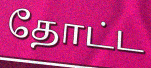
தோட்ட